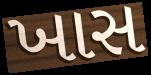
ખાસ